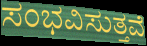
ಸಂಭವಿಸುತ್ತವೆ